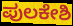
ಪುಲಕೇಶಿ